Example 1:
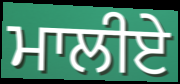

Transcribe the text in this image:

ਮਾਲੀਏ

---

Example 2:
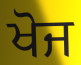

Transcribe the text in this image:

ਖੋਜ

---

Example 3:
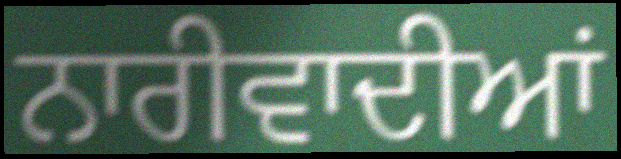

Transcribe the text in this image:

ਨਾਰੀਵਾਦੀਆਂ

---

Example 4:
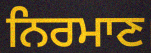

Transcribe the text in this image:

ਨਿਰਮਾਣ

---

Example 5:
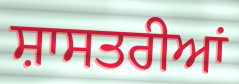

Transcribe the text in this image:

ਸ਼ਾਸਤਰੀਆਂ